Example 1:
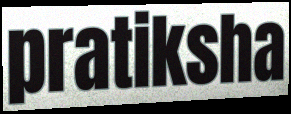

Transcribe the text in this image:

pratiksha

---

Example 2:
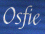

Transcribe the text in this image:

Osfie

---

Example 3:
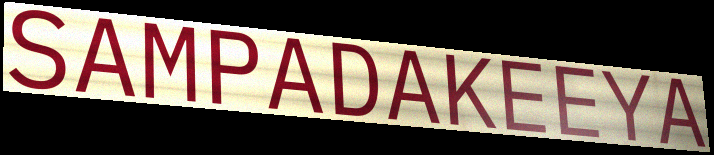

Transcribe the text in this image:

SAMPADAKEEYA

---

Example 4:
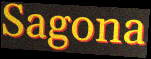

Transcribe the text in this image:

Sagona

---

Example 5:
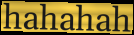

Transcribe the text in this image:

hahahah